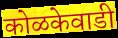
कोळकेवाडी